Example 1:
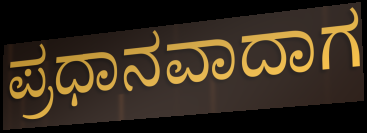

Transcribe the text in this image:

ಪ್ರಧಾನವಾದಾಗ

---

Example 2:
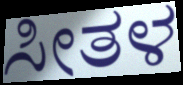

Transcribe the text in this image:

ಸೀತಳ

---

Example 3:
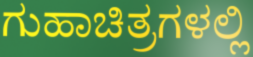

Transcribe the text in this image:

ಗುಹಾಚಿತ್ರಗಳಲ್ಲಿ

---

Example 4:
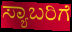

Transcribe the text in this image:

ಸ್ಯಾಬರಿಗೆ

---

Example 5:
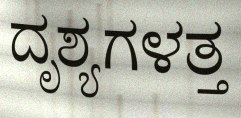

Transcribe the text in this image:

ದೃಶ್ಯಗಳತ್ತ